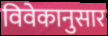
विवेकानुसार